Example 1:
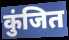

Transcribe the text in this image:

कुंजित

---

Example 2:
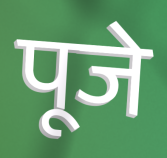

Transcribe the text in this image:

पूजे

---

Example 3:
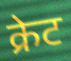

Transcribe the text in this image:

क्रेट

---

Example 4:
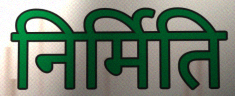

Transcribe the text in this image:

निर्मिति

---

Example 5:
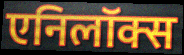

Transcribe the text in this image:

एनिलॉक्स